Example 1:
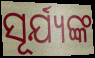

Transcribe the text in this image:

ସୂର୍ଯ୍ୟଙ୍କ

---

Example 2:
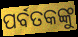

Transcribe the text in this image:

ପର୍ବତକଙ୍କୁ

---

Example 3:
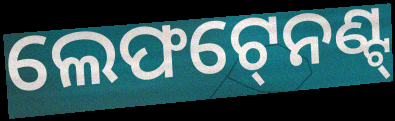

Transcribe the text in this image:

ଲେଫଟ୍‍ନେଣ୍ଟ୍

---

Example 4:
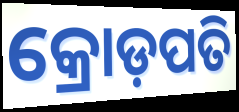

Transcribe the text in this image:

କ୍ରୋଡ଼ପତି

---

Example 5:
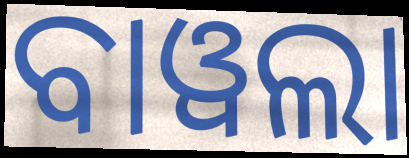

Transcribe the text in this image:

ବାୱଲା